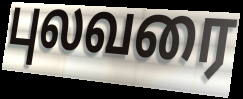
புலவரை